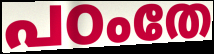
പഠംതേ